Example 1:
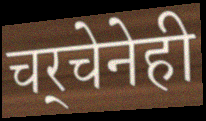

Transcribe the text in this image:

चर्चेनेही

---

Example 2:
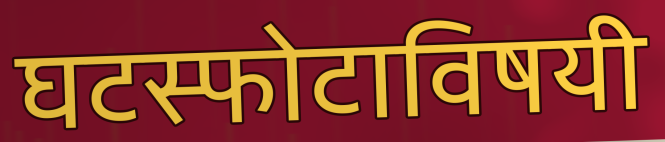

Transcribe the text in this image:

घटस्फोटाविषयी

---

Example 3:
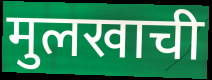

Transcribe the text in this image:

मुलखाची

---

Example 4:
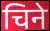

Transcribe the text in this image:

चिने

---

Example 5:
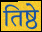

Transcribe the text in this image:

तिष्ठे